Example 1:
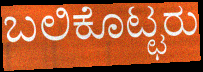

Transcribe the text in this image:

ಬಲಿಕೊಟ್ಟರು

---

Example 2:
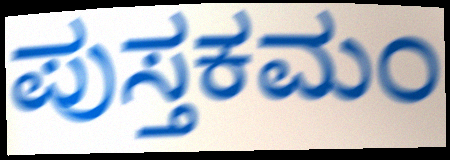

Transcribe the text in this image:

ಪುಸ್ತಕಮಂ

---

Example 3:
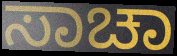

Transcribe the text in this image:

ಸಾಚಾ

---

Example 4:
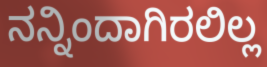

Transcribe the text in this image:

ನನ್ನಿಂದಾಗಿರಲಿಲ್ಲ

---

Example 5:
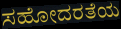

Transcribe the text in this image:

ಸಹೋದರತೆಯ